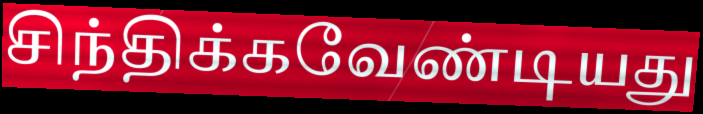
சிந்திக்கவேண்டியது